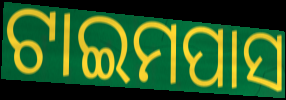
ଟାଇମପାସ